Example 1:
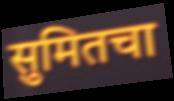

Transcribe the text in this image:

सुमितचा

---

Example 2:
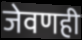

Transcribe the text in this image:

जेवणही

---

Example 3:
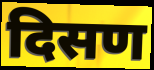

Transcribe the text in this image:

दिसण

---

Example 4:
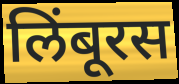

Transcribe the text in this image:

लिंबूरस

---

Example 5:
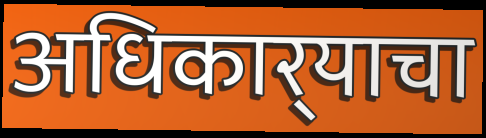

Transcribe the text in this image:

अधिकार्‍याचा